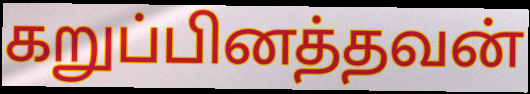
கறுப்பினத்தவன்